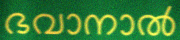
ഭവാനാൽ